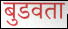
बुडवता